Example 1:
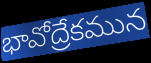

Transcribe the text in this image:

భావోద్రేకమున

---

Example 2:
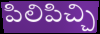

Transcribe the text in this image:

పిలిపిచ్చి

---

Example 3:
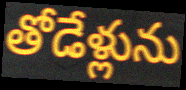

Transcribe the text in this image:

తోడేళ్లును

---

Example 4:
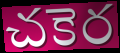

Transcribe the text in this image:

చకెర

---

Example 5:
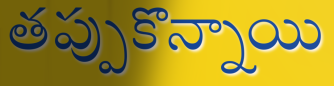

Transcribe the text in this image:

తప్పుకొన్నాయి